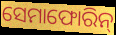
ସେମାଫୋରିନ୍